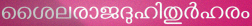
ശൈലരാജദുഹിതുർഹരം